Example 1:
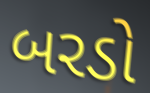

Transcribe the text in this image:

બરડો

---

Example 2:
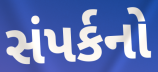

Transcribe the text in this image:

સંપર્કનો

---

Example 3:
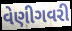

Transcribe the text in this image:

વેણીગવરી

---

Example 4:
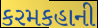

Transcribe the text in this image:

કરમકહાની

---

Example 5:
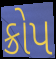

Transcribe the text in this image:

ક્રોપ